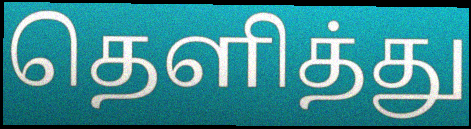
தெளித்து